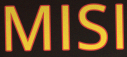
MISI